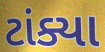
ટાંક્યા